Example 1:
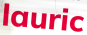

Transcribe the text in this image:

lauric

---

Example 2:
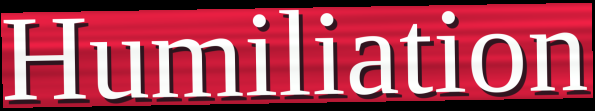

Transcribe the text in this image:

Humiliation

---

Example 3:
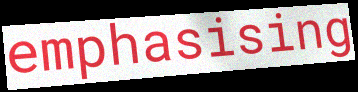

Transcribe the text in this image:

emphasising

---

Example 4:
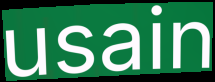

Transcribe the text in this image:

usain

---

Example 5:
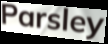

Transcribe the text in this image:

Parsley